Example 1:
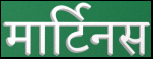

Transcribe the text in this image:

मार्टिनस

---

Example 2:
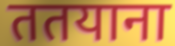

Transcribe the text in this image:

ततयाना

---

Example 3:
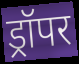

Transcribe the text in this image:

ड्रॉपर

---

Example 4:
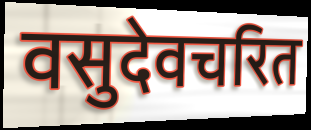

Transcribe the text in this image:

वसुदेवचरित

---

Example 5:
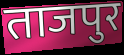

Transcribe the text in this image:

ताजपुर